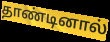
தாண்டினால்